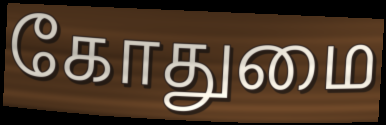
கோதுமை